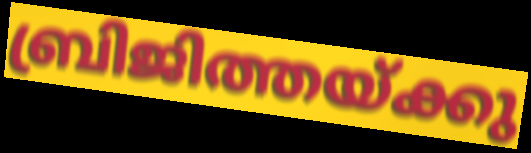
ബ്രിജിത്തയ്ക്കു